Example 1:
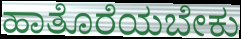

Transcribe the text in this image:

ಹಾತೊರೆಯಬೇಕು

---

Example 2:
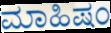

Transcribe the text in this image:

ಮಾಹಿಷಂ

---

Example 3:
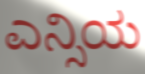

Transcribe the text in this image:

ಎನ್ಸಿಯ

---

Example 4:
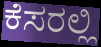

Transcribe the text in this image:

ಕೆಸರಲ್ಲಿ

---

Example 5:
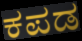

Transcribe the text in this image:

ಕಪಡ